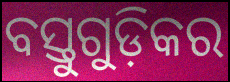
ବସ୍ତୁଗୁଡ଼ିକର